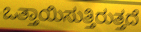
ಒತ್ತಾಯಿಸುತ್ತಿರುತ್ತದೆ